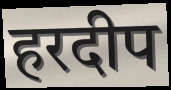
हरदीप